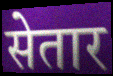
सेतार